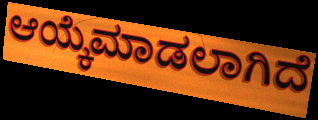
ಆಯ್ಕೆಮಾಡಲಾಗಿದೆ